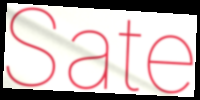
Sate